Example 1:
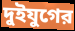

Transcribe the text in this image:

দুইযুগের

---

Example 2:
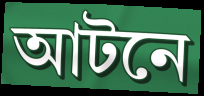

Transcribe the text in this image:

আটনে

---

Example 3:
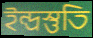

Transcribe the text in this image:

ইন্দ্রস্তুতি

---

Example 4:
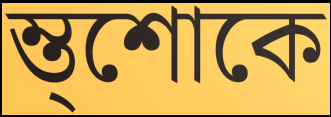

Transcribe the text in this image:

ম্ত্শোকে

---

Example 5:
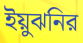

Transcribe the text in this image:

ইয়ুঝনির